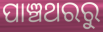
ପାଞ୍ଚଥରରୁ